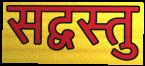
सद्वस्तु